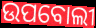
ଉପବୋଲୀ